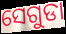
ସେଗୁଡା